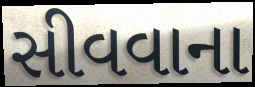
સીવવાના